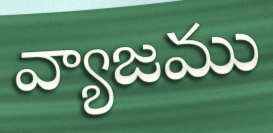
వ్యాజము